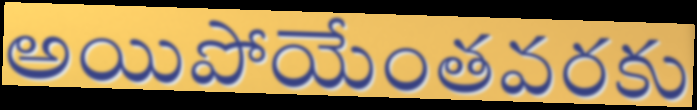
అయిపోయేంతవరకు